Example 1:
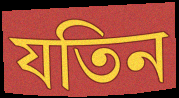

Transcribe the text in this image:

যতিন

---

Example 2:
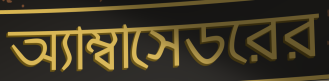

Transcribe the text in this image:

অ্যাম্বাসেডরের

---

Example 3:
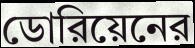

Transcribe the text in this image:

ডোরিয়েনের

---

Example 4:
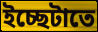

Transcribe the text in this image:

ইচ্ছেটাতে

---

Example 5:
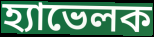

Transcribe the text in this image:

হ্যাভেলক